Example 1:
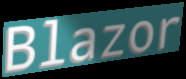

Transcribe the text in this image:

Blazor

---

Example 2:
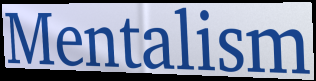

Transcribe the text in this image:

Mentalism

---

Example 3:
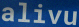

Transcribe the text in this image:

alivu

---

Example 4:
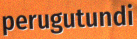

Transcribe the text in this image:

perugutundi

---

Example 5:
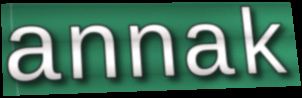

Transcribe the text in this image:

annak